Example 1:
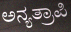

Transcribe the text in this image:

ಅನ್ಯತ್ರಾಪಿ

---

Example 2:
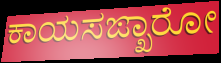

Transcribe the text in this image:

ಕಾಯಸಙ್ಖಾರೋ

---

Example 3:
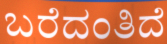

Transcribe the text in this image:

ಬರೆದಂತಿದೆ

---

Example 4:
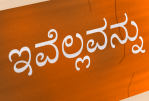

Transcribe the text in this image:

ಇವೆಲ್ಲವನ್ನು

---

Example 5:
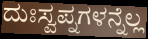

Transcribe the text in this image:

ದುಃಸ್ವಪ್ನಗಳನ್ನೆಲ್ಲ